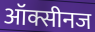
ऑक्सीनज